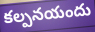
కల్పనయందు